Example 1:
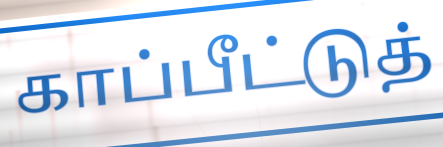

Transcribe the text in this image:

காப்பீட்டுத்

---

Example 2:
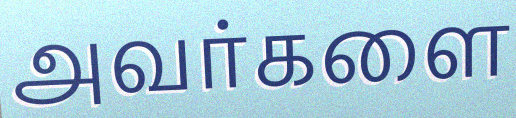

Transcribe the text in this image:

அவர்களை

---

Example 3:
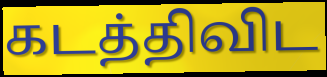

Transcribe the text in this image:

கடத்திவிட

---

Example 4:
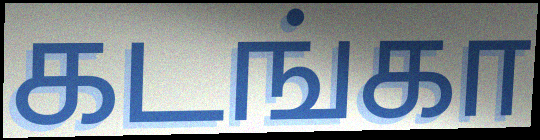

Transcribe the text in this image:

கடங்கா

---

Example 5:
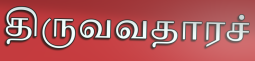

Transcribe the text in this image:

திருவவதாரச்